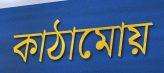
কাঠামোয়